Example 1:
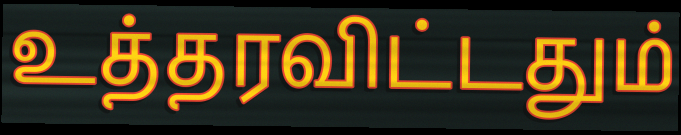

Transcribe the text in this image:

உத்தரவிட்டதும்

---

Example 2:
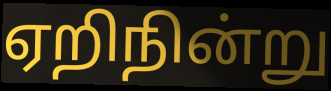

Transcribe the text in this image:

ஏறிநின்று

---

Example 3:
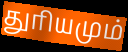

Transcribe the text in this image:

துரியமும்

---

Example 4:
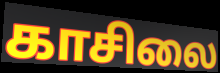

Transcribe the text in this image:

காசிலை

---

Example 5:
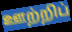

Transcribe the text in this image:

ஊற்றிப்